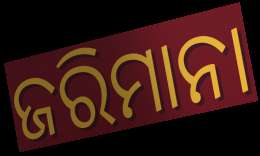
ଜରିମାନା